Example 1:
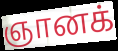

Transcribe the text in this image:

ஞானக்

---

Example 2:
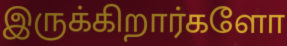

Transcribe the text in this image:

இருக்கிறார்களோ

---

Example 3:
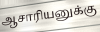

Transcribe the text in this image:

ஆசாரியனுக்கு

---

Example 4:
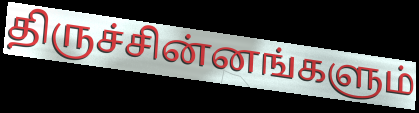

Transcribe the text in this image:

திருச்சின்னங்களும்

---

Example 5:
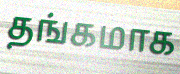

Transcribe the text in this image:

தங்கமாக